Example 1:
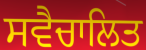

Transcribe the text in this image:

ਸਵੈਚਾਲਿਤ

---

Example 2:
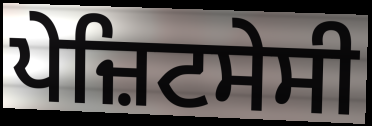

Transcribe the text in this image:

ਪੇਜ਼ਿਟਸੇਸੀ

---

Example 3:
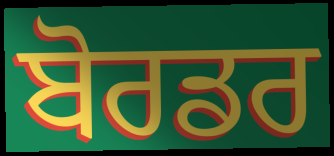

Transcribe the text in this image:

ਬੋਰਡਰ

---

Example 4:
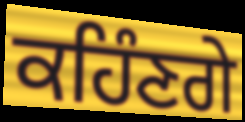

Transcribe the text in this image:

ਕਹਿੰਣਗੇ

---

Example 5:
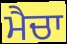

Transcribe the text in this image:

ਮੈਚਾ